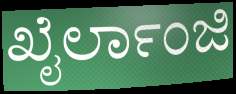
ಖೈರ್ಲಾಂಜಿ